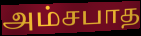
அம்சபாத